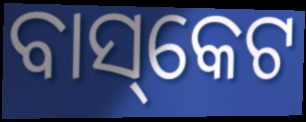
ବାସ୍‌କେଟ